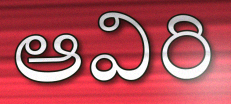
ఆవిరి